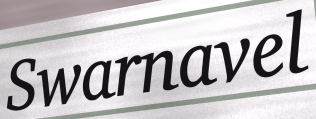
Swarnavel